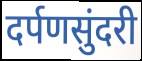
दर्पणसुंदरी